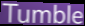
Tumble